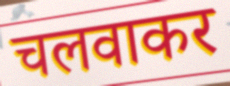
चलवाकर